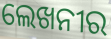
ଲେଖନୀର